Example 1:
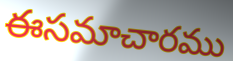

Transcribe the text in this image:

ఈసమాచారము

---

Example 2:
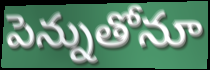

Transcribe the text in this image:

పెన్నుతోనూ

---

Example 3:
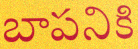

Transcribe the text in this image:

బాపనికి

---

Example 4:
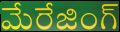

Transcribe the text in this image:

మేరేజింగ్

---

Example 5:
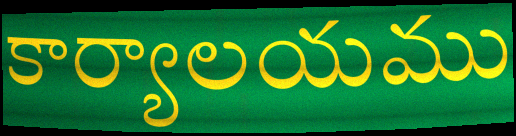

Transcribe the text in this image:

కార్యాలయము